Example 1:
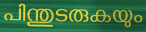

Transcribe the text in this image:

പിന്തുടരുകയും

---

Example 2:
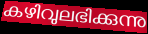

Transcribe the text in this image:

കഴിവുലഭിക്കുന്നു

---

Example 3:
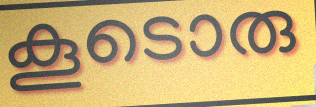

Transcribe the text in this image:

കൂടൊരു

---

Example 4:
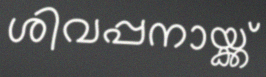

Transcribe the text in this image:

ശിവപ്പനായ്ക്ക്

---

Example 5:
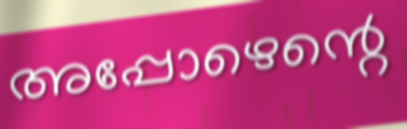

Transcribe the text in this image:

അപ്പോഴെന്റെ